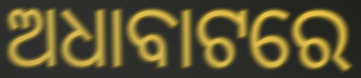
ଅଧାବାଟରେ